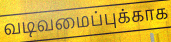
வடிவமைப்புக்காக